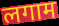
लगाम